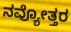
ನವ್ಯೋತ್ತರ